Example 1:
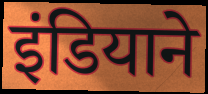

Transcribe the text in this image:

इंडियाने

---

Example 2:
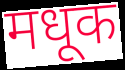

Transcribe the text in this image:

मधूक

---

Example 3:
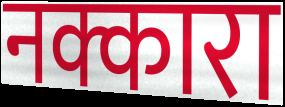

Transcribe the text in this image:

नक्कारा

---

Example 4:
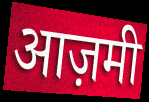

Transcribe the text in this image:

आज़मी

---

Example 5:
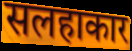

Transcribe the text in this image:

सलहाकार